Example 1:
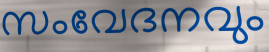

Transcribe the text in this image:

സംവേദനവും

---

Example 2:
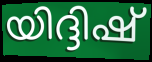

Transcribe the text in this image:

യിദ്ദിഷ്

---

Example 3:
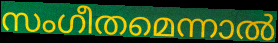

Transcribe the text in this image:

സംഗീതമെന്നാൽ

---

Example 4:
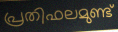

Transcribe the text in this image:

പ്രതിഫലമുണ്ട്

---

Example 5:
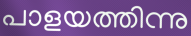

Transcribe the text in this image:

പാളയത്തിന്നു